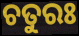
ଚତୁରଃ